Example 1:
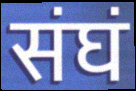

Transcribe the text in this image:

संघं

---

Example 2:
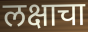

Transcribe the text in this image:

लक्षाचा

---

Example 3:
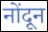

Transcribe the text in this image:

नोंदून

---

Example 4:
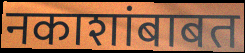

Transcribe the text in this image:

नकाशांबाबत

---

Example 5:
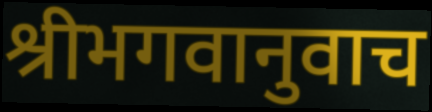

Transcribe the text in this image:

श्रीभगवानुवाच